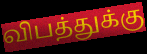
விபத்துக்கு